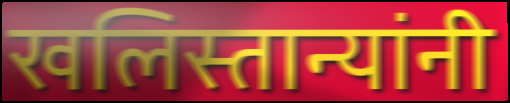
खलिस्तान्यांनी